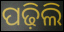
ପଢ଼ିଲି